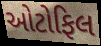
ઓટોફિલ